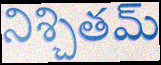
నిశ్చితమ్